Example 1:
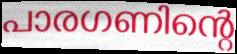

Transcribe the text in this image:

പാരഗണിന്റെ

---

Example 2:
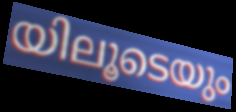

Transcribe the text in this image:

യിലൂടെയും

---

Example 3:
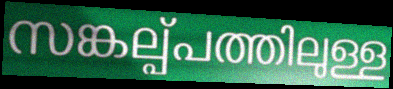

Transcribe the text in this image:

സങ്കല്പ്പത്തിലുള്ള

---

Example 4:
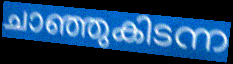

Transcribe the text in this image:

ചാഞ്ഞുകിടന്ന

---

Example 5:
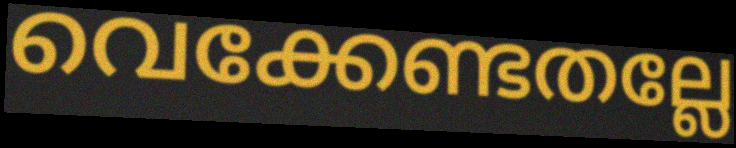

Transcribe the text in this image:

വെക്കേണ്ടതല്ലേ